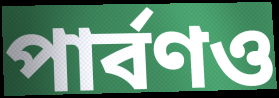
পার্বণও